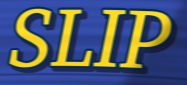
SLIP